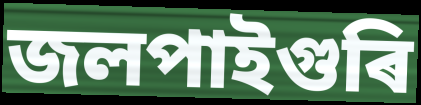
জলপাইগুৰি